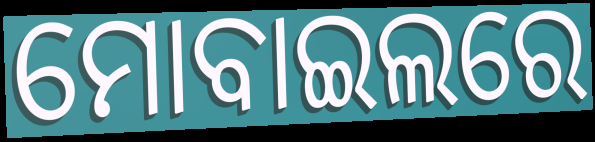
ମୋବାଇଲରେ